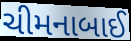
ચીમનાબાઈ